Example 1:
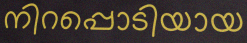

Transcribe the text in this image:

നിറപ്പൊടിയായ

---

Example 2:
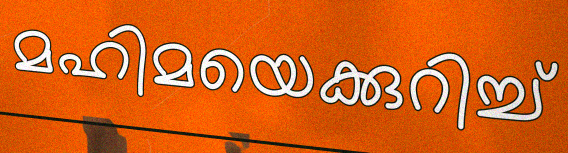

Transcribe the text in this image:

മഹിമയെക്കുറിച്ച്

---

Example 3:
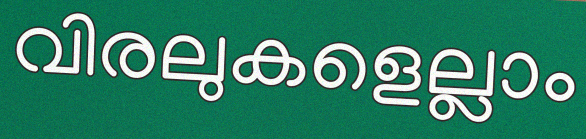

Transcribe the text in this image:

വിരലുകളെല്ലാം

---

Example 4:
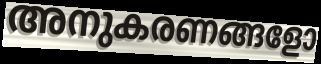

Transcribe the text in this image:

അനുകരണങ്ങളോ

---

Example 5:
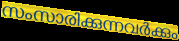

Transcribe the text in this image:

സംസാരിക്കുന്നവർക്കും